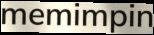
memimpin